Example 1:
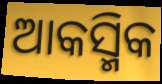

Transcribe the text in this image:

ଆକସ୍ମିକ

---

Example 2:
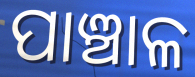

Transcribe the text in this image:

ପାଞ୍ଚାଳ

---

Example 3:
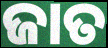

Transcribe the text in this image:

ଜାତ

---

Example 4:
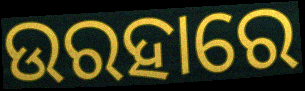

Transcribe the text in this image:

ଉରହାରେ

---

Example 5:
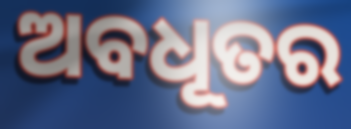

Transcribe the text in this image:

ଅବଧୂତର